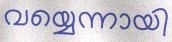
വയ്യെന്നായി